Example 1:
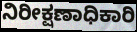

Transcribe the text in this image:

ನಿರೀಕ್ಷಣಾಧಿಕಾರಿ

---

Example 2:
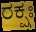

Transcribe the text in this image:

ರಕ್ಷಃ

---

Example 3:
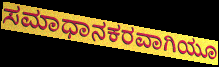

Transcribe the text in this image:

ಸಮಾಧಾನಕರವಾಗಿಯೂ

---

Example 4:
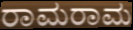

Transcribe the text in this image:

ರಾಮರಾಮ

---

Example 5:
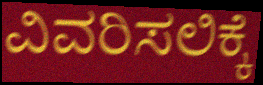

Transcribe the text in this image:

ವಿವರಿಸಲಿಕ್ಕೆ